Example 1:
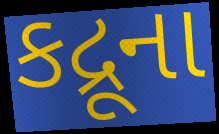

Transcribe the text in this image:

કદ્રૂના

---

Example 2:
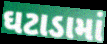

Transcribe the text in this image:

ઘટાડામાં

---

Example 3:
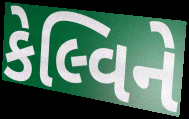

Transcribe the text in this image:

કેલ્વિને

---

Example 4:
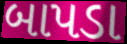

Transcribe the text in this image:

બાપડા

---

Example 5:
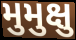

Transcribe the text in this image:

મુમુક્ષુ